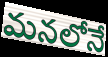
మనలోనే